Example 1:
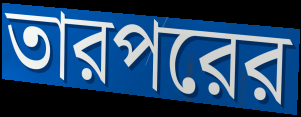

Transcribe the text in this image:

তারপরের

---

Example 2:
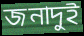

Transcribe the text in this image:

জনাদুই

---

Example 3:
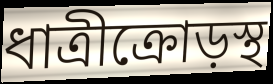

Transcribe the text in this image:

ধাত্রীক্রোড়স্থ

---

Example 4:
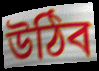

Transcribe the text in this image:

উঠিব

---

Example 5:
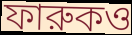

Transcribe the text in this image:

ফারুকও